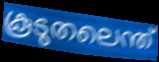
കൂടുതലെന്ത്